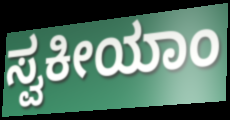
ಸ್ವಕೀಯಾಂ